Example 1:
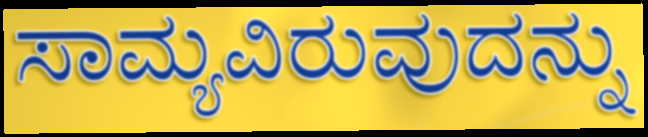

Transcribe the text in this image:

ಸಾಮ್ಯವಿರುವುದನ್ನು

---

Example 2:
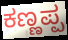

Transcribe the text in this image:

ಕಣ್ಣಪ್ಪ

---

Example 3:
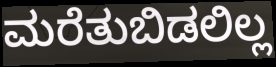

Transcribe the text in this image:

ಮರೆತುಬಿಡಲಿಲ್ಲ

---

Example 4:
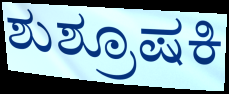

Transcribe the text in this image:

ಶುಶ್ರೂಷಕಿ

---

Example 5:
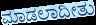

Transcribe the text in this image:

ಮಾಡಲಾದೀತು